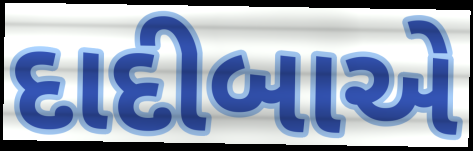
દાદીબાએ